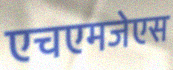
एचएमजेएस